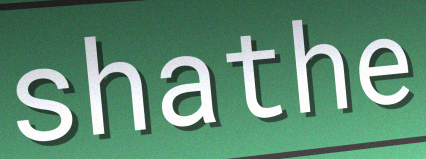
shathe